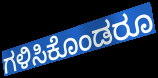
ಗಳಿಸಿಕೊಂಡರೂ